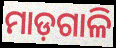
ମାଡ଼ଗାଳି